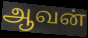
ஆவன்